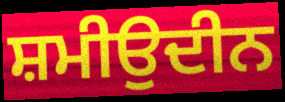
ਸ਼ਮੀਉਦੀਨ